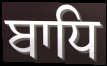
ਬਾਧਿ